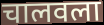
चालवला